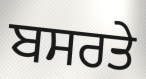
ਬਸਰਤੇ